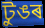
টুঙৰ